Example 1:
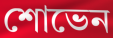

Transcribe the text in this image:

শোভেন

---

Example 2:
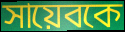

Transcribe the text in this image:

সায়েবকে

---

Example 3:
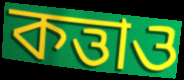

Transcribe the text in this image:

কত্তাও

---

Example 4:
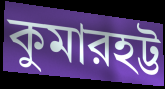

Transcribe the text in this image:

কুমারহট্ট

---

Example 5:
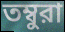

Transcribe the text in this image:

তম্বুরা